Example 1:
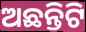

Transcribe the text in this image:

ଅଛନ୍ତିଟି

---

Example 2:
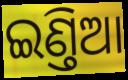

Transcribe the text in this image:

ଇଣ୍ତିଆ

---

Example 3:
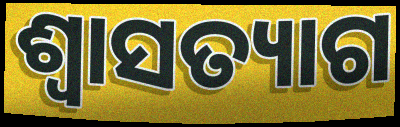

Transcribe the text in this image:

ଶ୍ବାସତ୍ୟାଗ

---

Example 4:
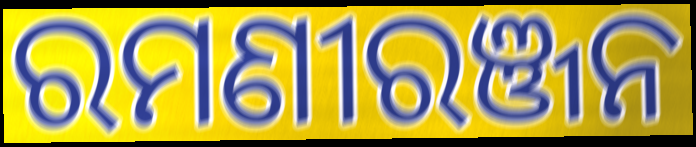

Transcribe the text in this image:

ରମଣୀରଞ୍ଜନ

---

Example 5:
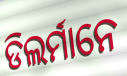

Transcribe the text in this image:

ଡିଲର୍ମାନେ